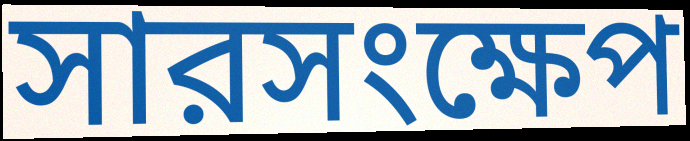
সারসংক্ষেপ